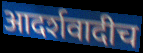
आदर्शवादीच